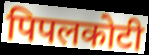
पिपलकोटी